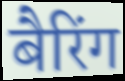
बैरिंग